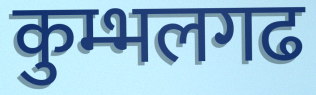
कुम्भलगढ